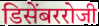
डिसेंबररोजी